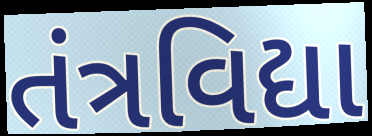
તંત્રવિદ્યા